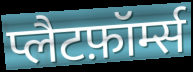
प्लैटफ़ॉर्म्स